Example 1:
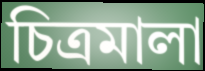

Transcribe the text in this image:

চিত্রমালা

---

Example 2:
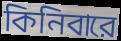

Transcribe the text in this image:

কিনিবারে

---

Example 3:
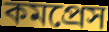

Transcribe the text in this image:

কমপ্রেস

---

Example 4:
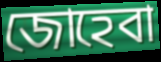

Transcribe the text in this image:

জোহেবা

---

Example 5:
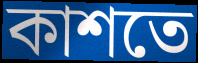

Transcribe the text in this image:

কাশতে